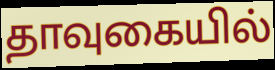
தாவுகையில்